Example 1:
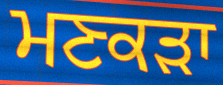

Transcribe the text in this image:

ਮਣਕੜਾ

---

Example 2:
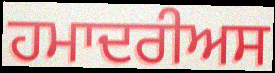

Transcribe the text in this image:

ਹਮਾਦਰੀਅਸ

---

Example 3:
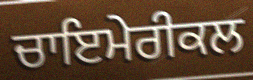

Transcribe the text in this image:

ਚਾਇਮੇਰੀਕਲ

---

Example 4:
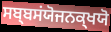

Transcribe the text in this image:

ਸਬ੍ਬਸਂਯੋਜਨਕ੍ਖਯੋ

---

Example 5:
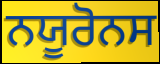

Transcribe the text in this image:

ਨਯੂਰੋਨਸ